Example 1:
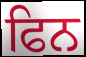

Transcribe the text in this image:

ਫਿਨ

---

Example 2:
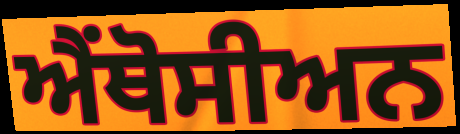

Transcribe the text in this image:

ਐਂਥੋਸੀਅਨ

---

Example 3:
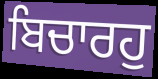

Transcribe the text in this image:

ਬਿਚਾਰਹੁ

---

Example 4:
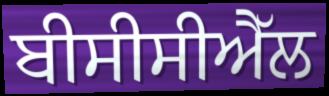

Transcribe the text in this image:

ਬੀਸੀਸੀਐੱਲ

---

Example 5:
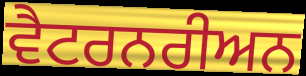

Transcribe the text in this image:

ਵੈਟਰਨਰੀਅਨ